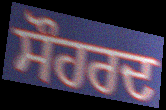
ਸੌਹਰਦ